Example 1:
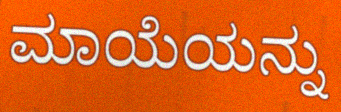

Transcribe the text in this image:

ಮಾಯೆಯನ್ನು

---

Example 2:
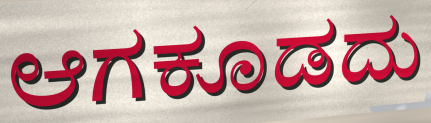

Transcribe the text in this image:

ಆಗಕೂಡದು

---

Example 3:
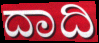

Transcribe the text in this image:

ದಾದಿ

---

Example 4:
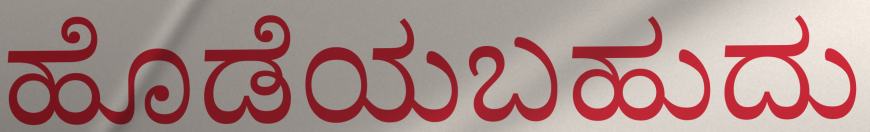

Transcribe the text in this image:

ಹೊಡೆಯಬಹುದು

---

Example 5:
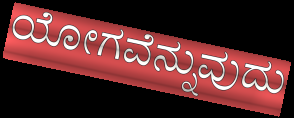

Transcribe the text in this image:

ಯೋಗವೆನ್ನುವುದು